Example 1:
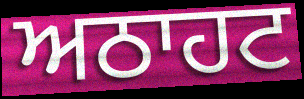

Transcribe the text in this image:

ਅਠਾਹਟ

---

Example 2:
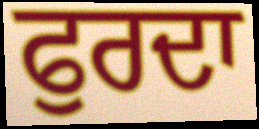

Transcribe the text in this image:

ਫੁਰਦਾ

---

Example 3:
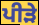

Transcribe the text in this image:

ਪੀੜੇ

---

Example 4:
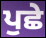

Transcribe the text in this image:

ਪੁਛੇ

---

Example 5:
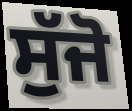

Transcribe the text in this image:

ਸੁੱਜੋ